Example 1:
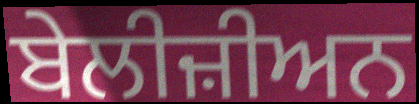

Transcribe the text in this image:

ਬੇਲੀਜ਼ੀਅਨ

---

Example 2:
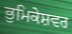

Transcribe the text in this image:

ਭੁਮਿਕੇਸ਼ਵਰ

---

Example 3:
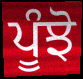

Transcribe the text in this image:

ਪੂੰਝੋ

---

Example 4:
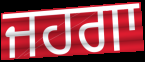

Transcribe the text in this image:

ਜਹਗਾ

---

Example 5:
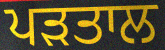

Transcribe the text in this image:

ਪੜਤਾਲ